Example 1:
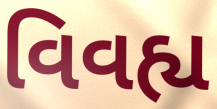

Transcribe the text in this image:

વિવહ્ય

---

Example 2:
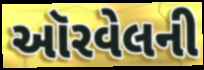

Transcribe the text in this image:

ઑરવેલની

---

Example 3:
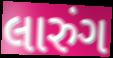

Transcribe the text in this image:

લારુંગ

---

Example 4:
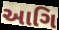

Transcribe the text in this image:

આગિ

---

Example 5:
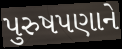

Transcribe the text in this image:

પુરુષપણાને